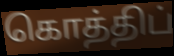
கொத்திப்